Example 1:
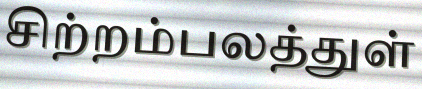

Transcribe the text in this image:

சிற்றம்பலத்துள்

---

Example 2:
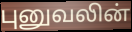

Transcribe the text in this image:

புனுவலின்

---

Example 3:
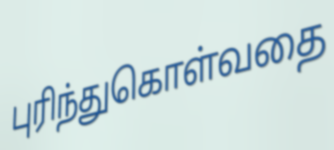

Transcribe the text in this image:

புரிந்துகொள்வதை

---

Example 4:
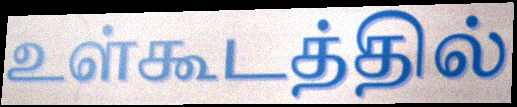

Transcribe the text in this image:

உள்கூடத்தில்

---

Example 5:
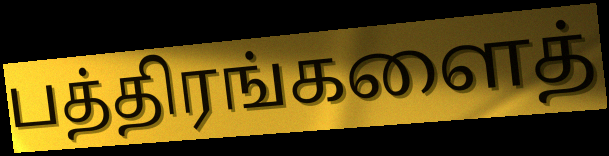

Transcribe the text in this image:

பத்திரங்களைத்